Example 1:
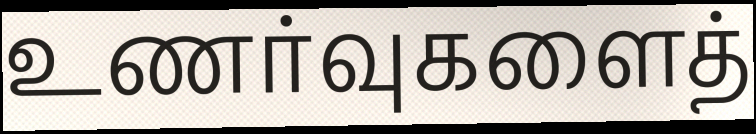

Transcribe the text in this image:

உணர்வுகளைத்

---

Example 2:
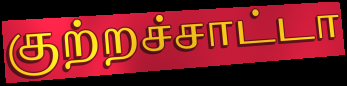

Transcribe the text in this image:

குற்றச்சாட்டா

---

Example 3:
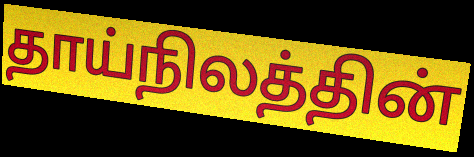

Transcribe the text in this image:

தாய்நிலத்தின்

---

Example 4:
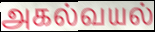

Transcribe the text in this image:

அகல்வயல்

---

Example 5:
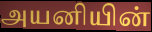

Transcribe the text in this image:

அயனியின்